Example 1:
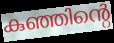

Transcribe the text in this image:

കുഞ്ഞിന്റെ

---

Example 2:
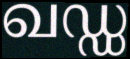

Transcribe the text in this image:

ഖഡ്ഡ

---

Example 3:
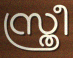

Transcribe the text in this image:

സ്ത്രീ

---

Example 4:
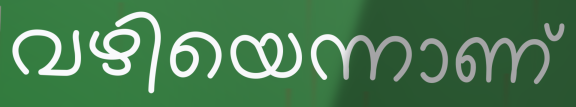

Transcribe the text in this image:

വഴിയെന്നാണ്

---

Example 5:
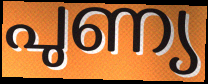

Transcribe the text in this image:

പുണ്യ